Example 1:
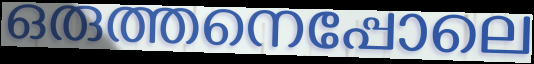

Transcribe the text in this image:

ഒരുത്തനെപ്പോലെ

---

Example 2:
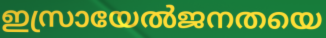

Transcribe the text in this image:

ഇസ്രായേൽജനതയെ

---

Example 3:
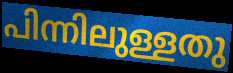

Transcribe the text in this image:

പിന്നിലുള്ളതു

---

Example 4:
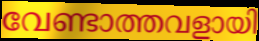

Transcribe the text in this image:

വേണ്ടാത്തവളായി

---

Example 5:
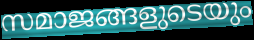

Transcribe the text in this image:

സമാജങ്ങളുടെയും